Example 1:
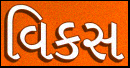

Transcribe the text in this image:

વિકસ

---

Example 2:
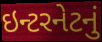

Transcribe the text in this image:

ઇન્ટરનેટનું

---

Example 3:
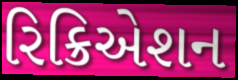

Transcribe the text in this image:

રિક્રિએશન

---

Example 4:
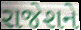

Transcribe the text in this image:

રાજેશને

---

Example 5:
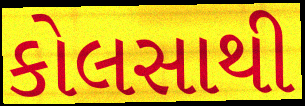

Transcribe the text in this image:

કોલસાથી